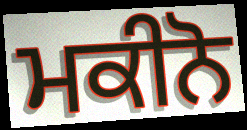
ਮਕੀਨੋ